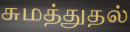
சுமத்துதல்